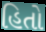
હિતો